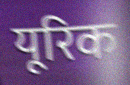
यूरिक